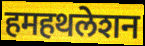
हमहथलेशन